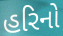
હરિનો